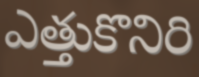
ఎత్తుకొనిరి